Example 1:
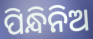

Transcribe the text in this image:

ପିନ୍ଧିନିଅ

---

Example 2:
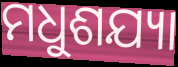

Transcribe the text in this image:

ମଧୁଶଯ୍ୟା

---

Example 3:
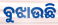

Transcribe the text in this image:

ବୁଝାଉଛି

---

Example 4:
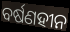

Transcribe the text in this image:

ବର୍ଷଣହୀନ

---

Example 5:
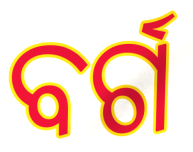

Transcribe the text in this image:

ବର୍ଗ